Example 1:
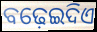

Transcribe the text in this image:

ବଢ଼େଇଦିଏ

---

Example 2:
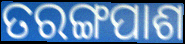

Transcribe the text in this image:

ତରଙ୍ଗପାଶ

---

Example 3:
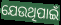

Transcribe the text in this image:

ଯେଉଥିପାଇଁ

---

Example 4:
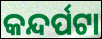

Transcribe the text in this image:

କନ୍ଦର୍ପଟା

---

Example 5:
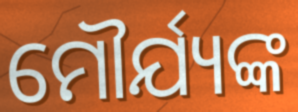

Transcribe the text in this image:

ମୌର୍ଯ୍ୟଙ୍କ